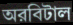
অরবিটাল